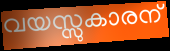
വയസ്സുകാരന്